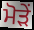
ਮੋੜੇਂ